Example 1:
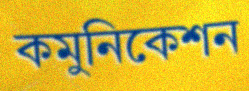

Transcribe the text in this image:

কমুনিকেশন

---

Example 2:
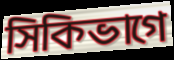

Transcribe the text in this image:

সিকিভাগে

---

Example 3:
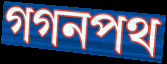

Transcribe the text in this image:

গগনপথ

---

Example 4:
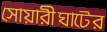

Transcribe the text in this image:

সোয়ারীঘাটের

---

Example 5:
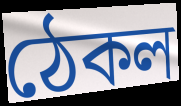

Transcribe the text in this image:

ঠেকল